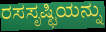
ರಸಸೃಷ್ಟಿಯನ್ನು